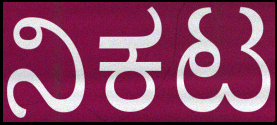
ನಿಕಟ